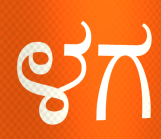
ಳಗ